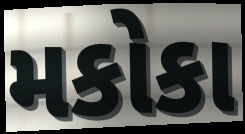
મકોકા